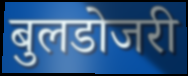
बुलडोजरी